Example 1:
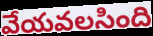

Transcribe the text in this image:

వేయవలసింది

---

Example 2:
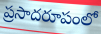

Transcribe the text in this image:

ప్రసాదరూపంలో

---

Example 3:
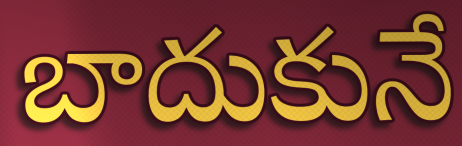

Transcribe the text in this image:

బాదుకునే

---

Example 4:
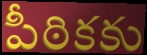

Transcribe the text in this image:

పీఠికకు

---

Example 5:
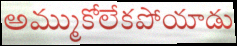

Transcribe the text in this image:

అమ్ముకోలేకపోయాడు